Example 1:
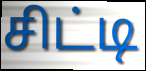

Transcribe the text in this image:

சிட்டி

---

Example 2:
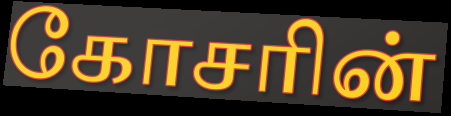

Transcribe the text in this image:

கோசரின்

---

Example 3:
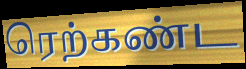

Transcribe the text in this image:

ரெற்கண்ட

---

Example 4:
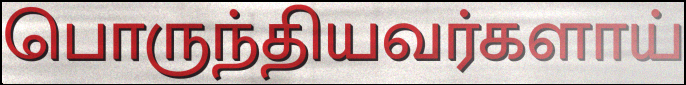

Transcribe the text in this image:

பொருந்தியவர்களாய்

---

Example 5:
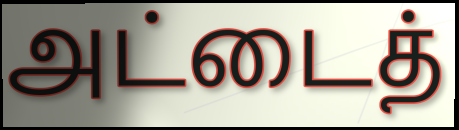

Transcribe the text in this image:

அட்டைத்